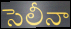
సెలీనా